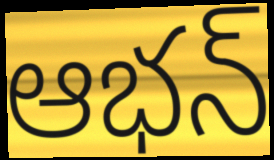
ఆభన్